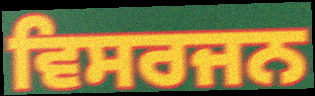
ਵਿਸਰਜਨ